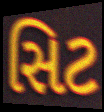
સિટ